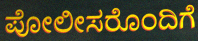
ಪೋಲೀಸರೊಂದಿಗೆ